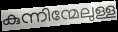
കുന്നിന്മേലുള്ള